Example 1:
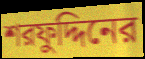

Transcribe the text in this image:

শরফুদ্দিনের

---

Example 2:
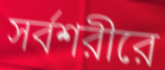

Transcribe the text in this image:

সর্বশরীরে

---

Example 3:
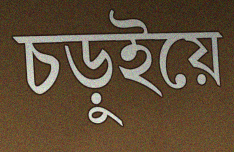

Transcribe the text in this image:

চড়ুইয়ে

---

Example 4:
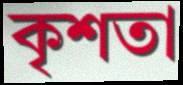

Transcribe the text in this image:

কৃশতা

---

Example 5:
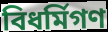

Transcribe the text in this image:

বিধর্মিগণ